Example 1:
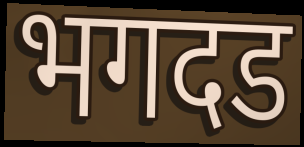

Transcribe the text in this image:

भगदड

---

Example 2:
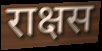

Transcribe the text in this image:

राक्षस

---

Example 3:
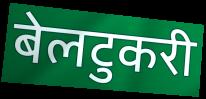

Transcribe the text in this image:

बेलटुकरी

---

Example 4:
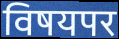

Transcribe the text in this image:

विषयपर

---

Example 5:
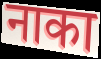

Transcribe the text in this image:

नाका